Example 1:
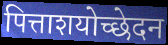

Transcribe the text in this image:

पित्ताशयोच्छेदन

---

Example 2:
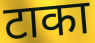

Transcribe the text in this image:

टाका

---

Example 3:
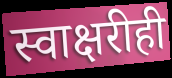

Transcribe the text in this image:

स्वाक्षरीही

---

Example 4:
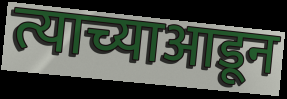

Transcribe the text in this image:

त्याच्याआडून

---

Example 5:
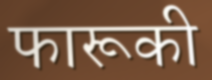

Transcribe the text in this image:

फारूकी